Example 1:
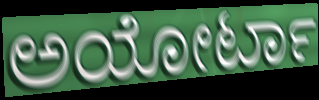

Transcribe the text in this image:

ಅಯೋರ್ಟಾ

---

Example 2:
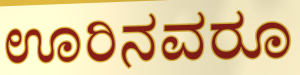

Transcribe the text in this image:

ಊರಿನವರೂ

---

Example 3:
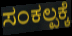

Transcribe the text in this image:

ಸಂಕಲ್ಪಕ್ಕೆ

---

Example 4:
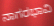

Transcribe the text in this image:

ನಾಗರಭಾವಿ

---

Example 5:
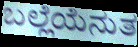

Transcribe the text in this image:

ಬಲ್ಲೆಯೆನುತ